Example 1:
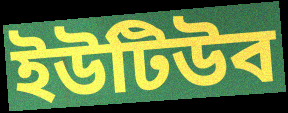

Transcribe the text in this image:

ইউটিউব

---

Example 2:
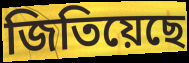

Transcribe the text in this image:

জিতিয়েছে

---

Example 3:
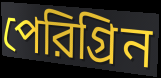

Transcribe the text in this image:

পেরিগ্রিন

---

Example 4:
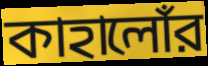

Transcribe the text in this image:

কাহালোঁর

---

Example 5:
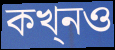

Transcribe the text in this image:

কখ্নও